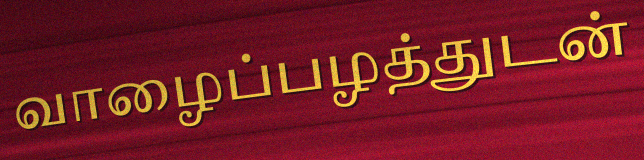
வாழைப்பழத்துடன்